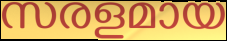
സരളമായ